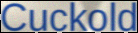
Cuckold